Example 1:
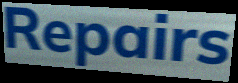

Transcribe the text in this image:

Repairs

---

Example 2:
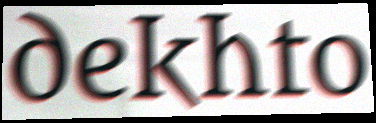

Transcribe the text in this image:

dekhto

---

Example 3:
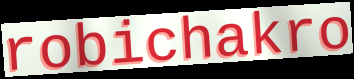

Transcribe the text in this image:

robichakro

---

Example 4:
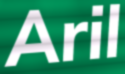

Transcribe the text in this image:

Aril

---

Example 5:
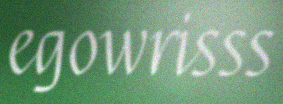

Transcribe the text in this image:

egowrisss